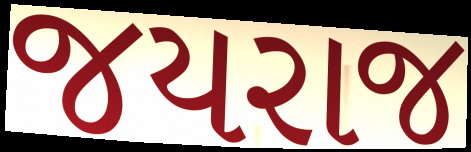
જયરાજ